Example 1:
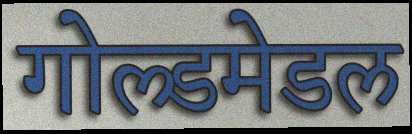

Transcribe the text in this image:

गोल्डमेडल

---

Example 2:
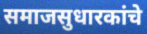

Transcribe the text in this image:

समाजसुधारकांचे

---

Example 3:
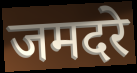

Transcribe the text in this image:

जमदरे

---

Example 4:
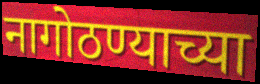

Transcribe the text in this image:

नागोठण्याच्या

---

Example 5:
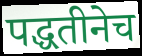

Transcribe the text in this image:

पद्धतीनेच